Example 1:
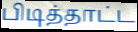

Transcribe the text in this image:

பிடித்தாட்ட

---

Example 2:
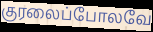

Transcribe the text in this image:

குரலைப்போலவே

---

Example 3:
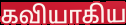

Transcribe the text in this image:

கவியாகிய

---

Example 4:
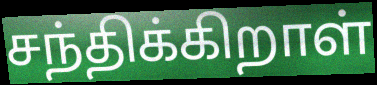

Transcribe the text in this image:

சந்திக்கிறாள்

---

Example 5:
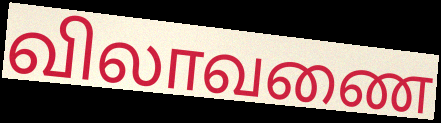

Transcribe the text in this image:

விலாவணை